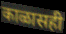
काळासही